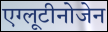
एग्लूटीनोजेन